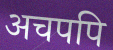
अचपपि